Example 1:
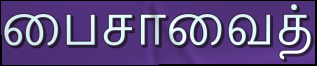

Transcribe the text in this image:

பைசாவைத்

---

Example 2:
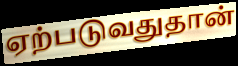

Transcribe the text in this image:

ஏற்படுவதுதான்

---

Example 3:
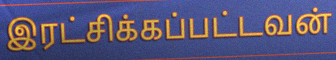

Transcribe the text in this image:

இரட்சிக்கப்பட்டவன்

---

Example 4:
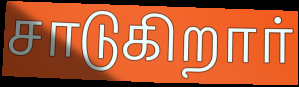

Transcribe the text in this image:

சாடுகிறார்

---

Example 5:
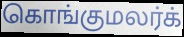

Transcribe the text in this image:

கொங்குமலர்க்